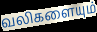
வலிகளையும்